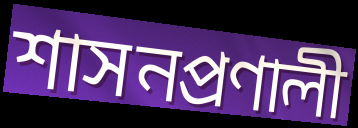
শাসনপ্রণালী